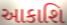
આકાશિ